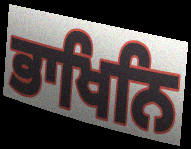
ਭਾਖਿਨਿ